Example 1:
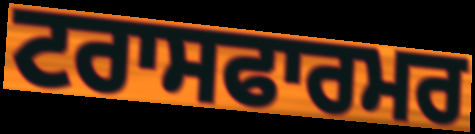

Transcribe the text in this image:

ਟਰਾਸਫਾਰਮਰ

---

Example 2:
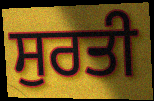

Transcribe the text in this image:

ਸੁਰਤੀ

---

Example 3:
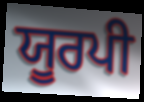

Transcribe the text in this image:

ਯੂਰਪੀ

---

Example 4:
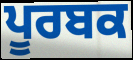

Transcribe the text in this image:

ਪੂਰਬਕ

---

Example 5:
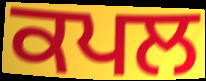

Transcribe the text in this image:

ਕਪਲ